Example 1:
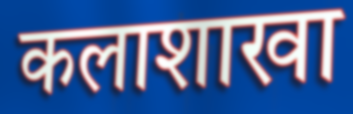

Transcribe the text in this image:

कलाशाखा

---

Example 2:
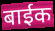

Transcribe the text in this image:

बाईक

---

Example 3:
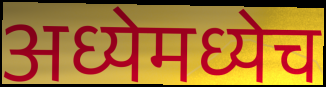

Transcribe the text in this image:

अध्येमध्येच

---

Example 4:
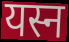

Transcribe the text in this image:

यस्न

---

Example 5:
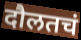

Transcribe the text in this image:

दौलतचं